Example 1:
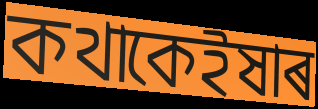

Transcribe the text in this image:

কথাকেইষাৰ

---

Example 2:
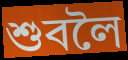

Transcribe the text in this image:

শুবলৈ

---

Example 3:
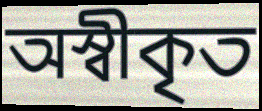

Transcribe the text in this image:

অস্বীকৃত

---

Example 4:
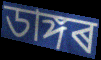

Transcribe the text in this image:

ডাঙ্গৰ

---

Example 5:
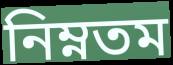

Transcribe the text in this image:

নিম্নতম